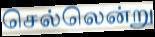
செல்லென்று